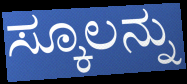
ಸ್ಕೂಲನ್ನು